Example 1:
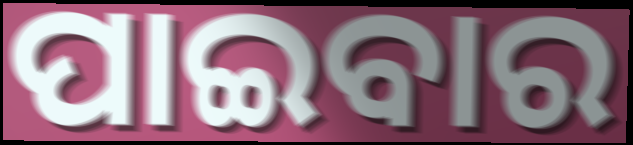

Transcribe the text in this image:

ପାଇବାର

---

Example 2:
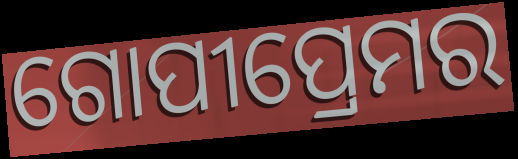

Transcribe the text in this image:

ଗୋପୀପ୍ରେମର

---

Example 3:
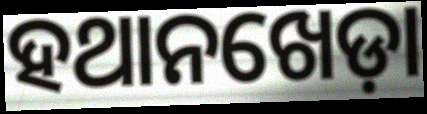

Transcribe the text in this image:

ହଥାନଖେଡ଼ା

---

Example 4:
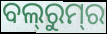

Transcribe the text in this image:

ବଲ୍‍ରୁମ୍‌ର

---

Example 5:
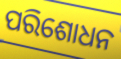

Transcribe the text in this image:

ପରିଶୋଧନ